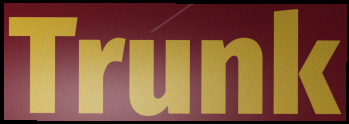
Trunk